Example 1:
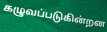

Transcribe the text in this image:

கழுவப்படுகின்றன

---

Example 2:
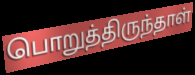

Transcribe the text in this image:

பொறுத்திருந்தாள்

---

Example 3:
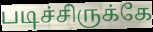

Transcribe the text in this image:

படிச்சிருக்கே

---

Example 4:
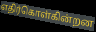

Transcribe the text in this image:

எதிர்கொள்கின்றன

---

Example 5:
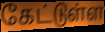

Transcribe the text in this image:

கேட்டுள்ள